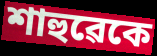
শাহুৱেকে